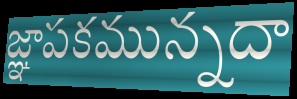
జ్ఞాపకమున్నదా